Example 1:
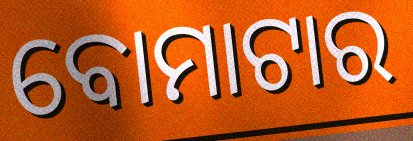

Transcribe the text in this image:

ବୋମାଟାର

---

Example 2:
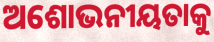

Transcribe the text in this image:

ଅଶୋଭନୀୟତାକୁ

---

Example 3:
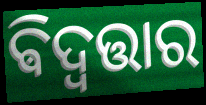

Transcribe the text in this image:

ଵିଦ୍ବତ୍ତାର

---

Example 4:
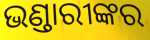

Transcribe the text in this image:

ଭଣ୍ଡାରୀଙ୍କର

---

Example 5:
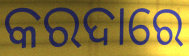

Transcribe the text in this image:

କରଦାରେ